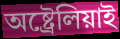
অষ্ট্ৰেলিয়াই